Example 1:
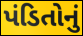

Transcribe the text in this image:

પંડિતોનું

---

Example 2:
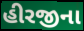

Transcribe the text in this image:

હીરજીના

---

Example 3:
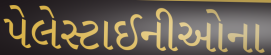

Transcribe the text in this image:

પેલેસ્ટાઈનીઓના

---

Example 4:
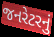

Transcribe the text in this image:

જનરેટરનું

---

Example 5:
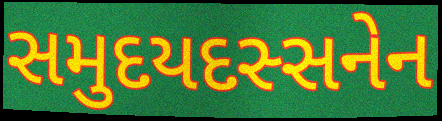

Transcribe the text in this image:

સમુદયદસ્સનેન